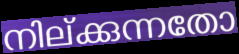
നില്ക്കുന്നതോ